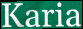
Karia